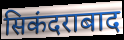
सिकंदराबाद